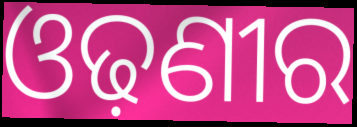
ଓଢ଼ଣୀର